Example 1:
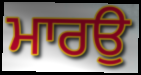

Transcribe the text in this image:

ਮਾਰਉ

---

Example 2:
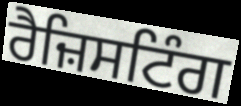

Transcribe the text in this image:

ਰੈਜ਼ਿਸਟਿੰਗ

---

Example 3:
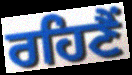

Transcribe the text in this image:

ਰਹਿਣੈਂ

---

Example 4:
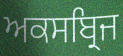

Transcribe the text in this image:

ਅਕਸਬ੍ਰਿਜ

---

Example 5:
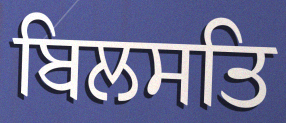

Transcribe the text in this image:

ਬਿਲਸਤਿ